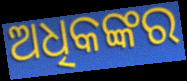
ଅଧିକଙ୍କର